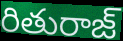
రితురాజ్